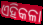
ଏହିକଳା